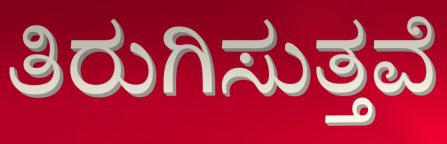
ತಿರುಗಿಸುತ್ತವೆ